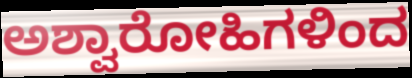
ಅಶ್ವಾರೋಹಿಗಳಿಂದ